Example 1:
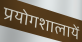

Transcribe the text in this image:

प्रयोगशालायें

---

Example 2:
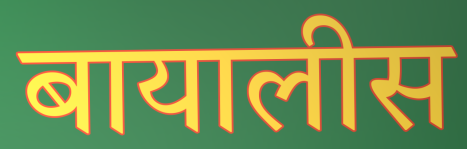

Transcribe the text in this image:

बायालीस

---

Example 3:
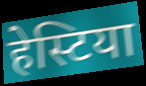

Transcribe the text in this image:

हेस्टिया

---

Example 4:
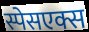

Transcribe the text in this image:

स्पेसएक्स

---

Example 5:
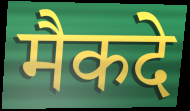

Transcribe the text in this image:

मैकदे